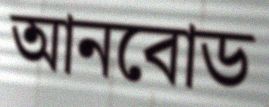
আনবোড